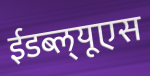
ईडब्ल्यूएस